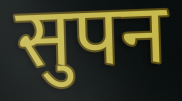
सुपन